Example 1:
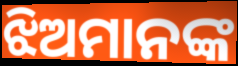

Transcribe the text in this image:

ଝିଅମାନଙ୍କ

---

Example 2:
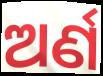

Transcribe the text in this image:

ଅର୍ଣ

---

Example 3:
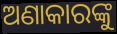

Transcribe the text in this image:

ଅଣାକାରଙ୍କୁ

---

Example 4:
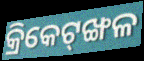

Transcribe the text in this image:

କ୍ରିକେଟ୍‌ଙ୍ଖଳ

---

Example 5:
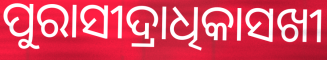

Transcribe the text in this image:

ପୁରାସୀଦ୍ରାଧିକାସଖୀ